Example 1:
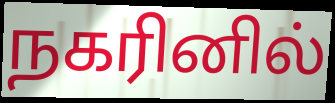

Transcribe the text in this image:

நகரினில்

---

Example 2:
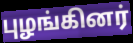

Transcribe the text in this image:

புழங்கினர்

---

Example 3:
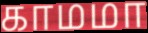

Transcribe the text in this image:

காமமா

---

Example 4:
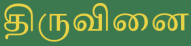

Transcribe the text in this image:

திருவினை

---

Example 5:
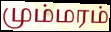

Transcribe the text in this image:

மும்மரம்